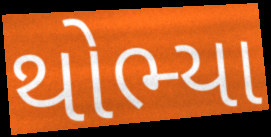
થોભ્યા